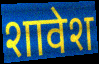
शावेश